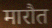
मारौत